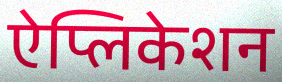
ऐप्लिकेशन